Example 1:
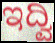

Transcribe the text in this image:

ಇದ್ವಿ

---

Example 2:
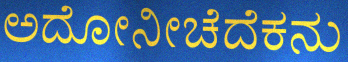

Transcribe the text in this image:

ಅದೋನೀಚೆದೆಕನು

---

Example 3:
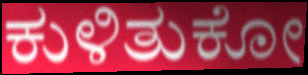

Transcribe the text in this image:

ಕುಳಿತುಕೋ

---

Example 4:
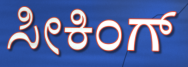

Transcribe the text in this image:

ಸೀಕಿಂಗ್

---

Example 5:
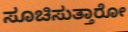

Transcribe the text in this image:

ಸೂಚಿಸುತ್ತಾರೋ